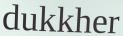
dukkher